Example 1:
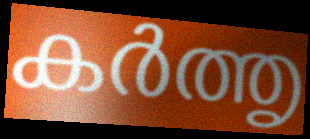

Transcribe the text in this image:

കർത്തൃ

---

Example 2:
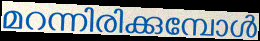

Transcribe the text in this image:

മറന്നിരിക്കുമ്പോൾ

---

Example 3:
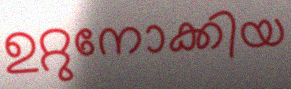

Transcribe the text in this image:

ഉറ്റുനോക്കിയ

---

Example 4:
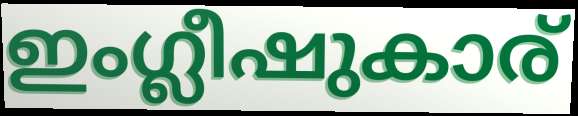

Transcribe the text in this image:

ഇംഗ്ലീഷുകാര്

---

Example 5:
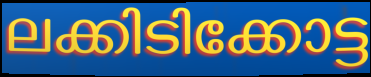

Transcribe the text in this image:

ലക്കിടിക്കോട്ട